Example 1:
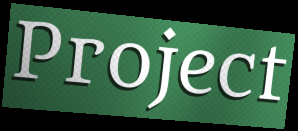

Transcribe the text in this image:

Project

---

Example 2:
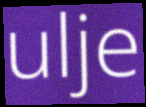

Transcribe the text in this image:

ulje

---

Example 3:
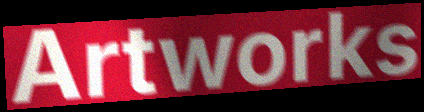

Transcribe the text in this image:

Artworks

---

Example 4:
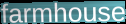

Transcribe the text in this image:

farmhouse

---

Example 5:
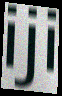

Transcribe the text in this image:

iji